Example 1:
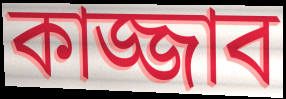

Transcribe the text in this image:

কাজ্জাব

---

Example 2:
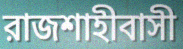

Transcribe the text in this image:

রাজশাহীবাসী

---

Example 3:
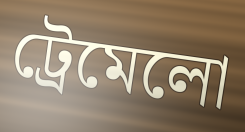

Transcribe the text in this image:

ট্রেমেলো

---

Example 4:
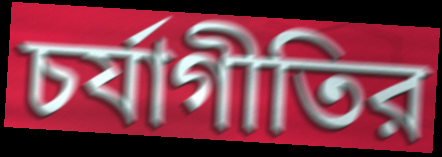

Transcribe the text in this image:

চর্যাগীতির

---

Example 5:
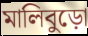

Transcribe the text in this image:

মালিবুড়ো